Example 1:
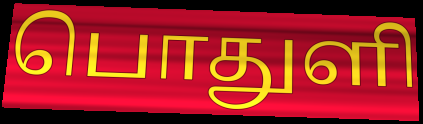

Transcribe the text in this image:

பொதுளி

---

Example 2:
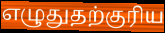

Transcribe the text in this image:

எழுதுதற்குரிய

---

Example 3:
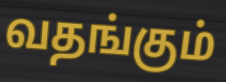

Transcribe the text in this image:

வதங்கும்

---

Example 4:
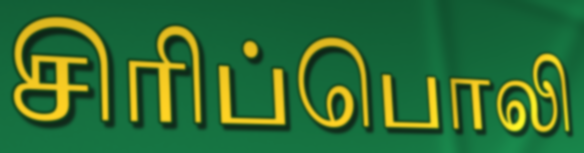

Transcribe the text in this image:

சிரிப்பொலி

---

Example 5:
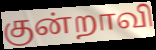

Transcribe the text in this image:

குன்றாவி